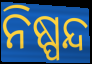
ନିଷ୍ପନ୍ଦ